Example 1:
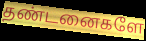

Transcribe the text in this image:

தண்டனைகளே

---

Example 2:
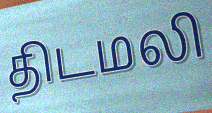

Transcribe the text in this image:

திடமலி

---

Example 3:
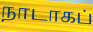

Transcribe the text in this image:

நாடாகப்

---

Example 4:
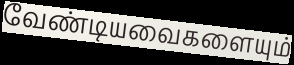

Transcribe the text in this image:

வேண்டியவைகளையும்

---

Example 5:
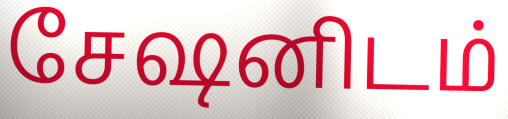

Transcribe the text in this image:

சேஷனிடம்